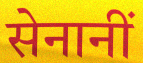
सेनानीं